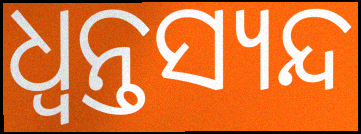
ଧ୍ଵନ୍ତସ୍ୟନ୍ଦ